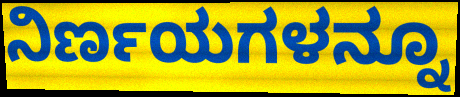
ನಿರ್ಣಯಗಳನ್ನೂ